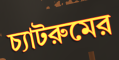
চ্যাটরুমের